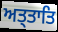
ਅਤ੍ਤਾਤਿ